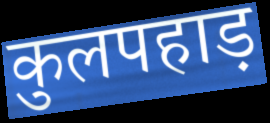
कुलपहाड़